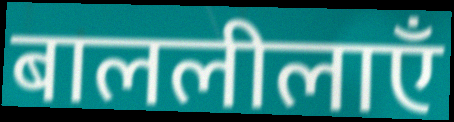
बाललीलाएँ